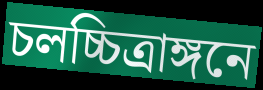
চলচ্চিত্রাঙ্গনে